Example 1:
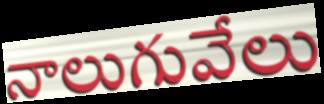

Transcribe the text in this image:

నాలుగువేలు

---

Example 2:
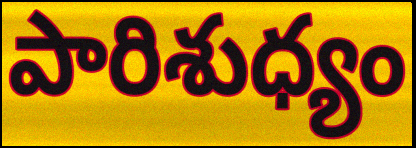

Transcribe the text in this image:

పారిశుధ్యం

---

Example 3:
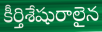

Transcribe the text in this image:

కీర్తిశేషురాలైన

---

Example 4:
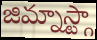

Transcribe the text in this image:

జిమ్నాస్ట్గా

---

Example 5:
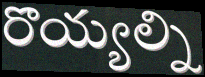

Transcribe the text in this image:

రొయ్యల్ని